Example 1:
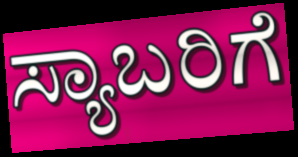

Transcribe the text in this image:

ಸ್ಯಾಬರಿಗೆ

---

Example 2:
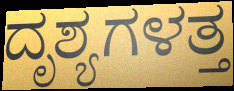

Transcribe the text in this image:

ದೃಶ್ಯಗಳತ್ತ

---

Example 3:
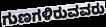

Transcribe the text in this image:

ಗುಣಗಳಿರುವವರು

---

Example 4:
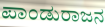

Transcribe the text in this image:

ಪಾಂಡುರಾಜನ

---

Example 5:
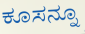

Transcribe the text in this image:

ಕೂಸನ್ನೂ